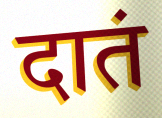
दातं